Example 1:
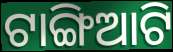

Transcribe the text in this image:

ଟାଙ୍ଗିଆଟି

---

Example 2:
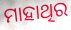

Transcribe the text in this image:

ମାହାଥିର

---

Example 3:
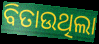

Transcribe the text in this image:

ବିତାଉଥିଲା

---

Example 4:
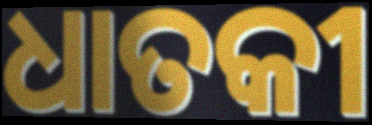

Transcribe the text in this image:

ଧାତକୀ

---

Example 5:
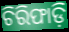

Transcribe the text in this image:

ଚିରିଫାଡ଼ି